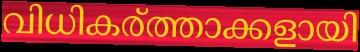
വിധികര്ത്താക്കളായി